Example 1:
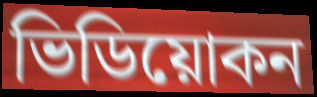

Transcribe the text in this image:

ভিডিয়োকন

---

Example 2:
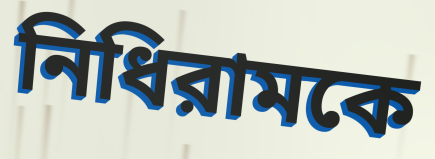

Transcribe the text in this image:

নিধিরামকে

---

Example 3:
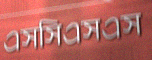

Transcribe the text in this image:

এসসিএসএস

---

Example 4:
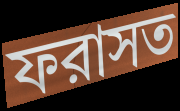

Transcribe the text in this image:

ফরাসত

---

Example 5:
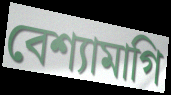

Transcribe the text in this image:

বেশ্যামাগি